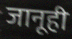
जानूही